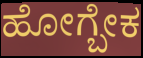
ಹೋಗ್ಬೇಕ